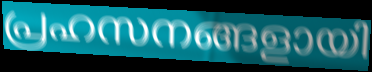
പ്രഹസനങ്ങളായി